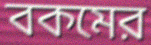
বকমের